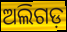
ଅଲିଗଡ଼